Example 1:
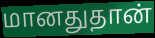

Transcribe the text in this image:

மானதுதான்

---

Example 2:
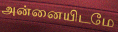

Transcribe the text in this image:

அன்னையிடமே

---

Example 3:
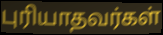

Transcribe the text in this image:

புரியாதவர்கள்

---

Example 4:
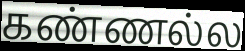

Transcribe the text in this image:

கண்ணல்ல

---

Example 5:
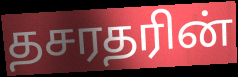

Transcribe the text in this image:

தசரதரின்